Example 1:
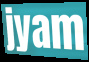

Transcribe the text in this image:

jyam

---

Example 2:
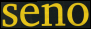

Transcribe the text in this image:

seno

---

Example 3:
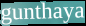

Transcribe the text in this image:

gunthaya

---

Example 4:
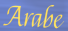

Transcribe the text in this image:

Arabe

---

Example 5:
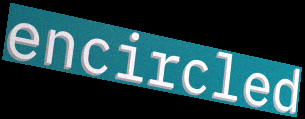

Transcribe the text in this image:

encircled